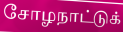
சோழநாட்டுக்